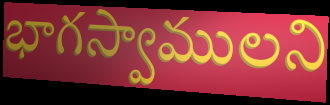
భాగస్వాములని